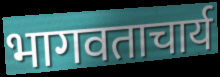
भागवताचार्य